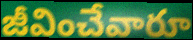
జీవించేవారూ